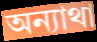
অন্যাথা